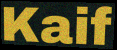
Kaif